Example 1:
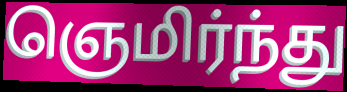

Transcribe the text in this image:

ஞெமிர்ந்து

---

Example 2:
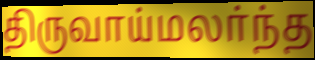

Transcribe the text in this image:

திருவாய்மலர்ந்த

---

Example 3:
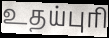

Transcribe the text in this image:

உதய்புரி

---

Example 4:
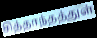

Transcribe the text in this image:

சித்தாந்தத்துள்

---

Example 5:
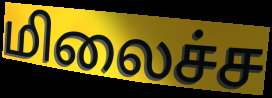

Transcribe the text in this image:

மிலைச்ச